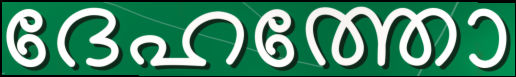
ദേഹത്തോ